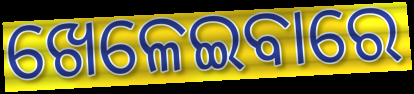
ଖେଳେଇବାରେ